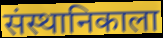
संस्थानिकाला